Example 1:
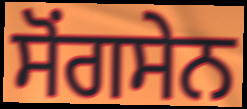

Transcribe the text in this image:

ਸੋਂਗਸੇਨ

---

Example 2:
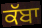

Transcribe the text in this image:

ਕੱਬਾ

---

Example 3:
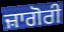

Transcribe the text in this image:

ਜ਼ਾਗੋਰੀ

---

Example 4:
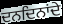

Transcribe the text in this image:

ਦਨਦਿਨਾਂਦੇ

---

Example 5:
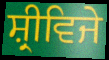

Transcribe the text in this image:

ਸ਼੍ਰੀਵਿਜੇ